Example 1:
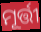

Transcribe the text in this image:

ମୂର୍ତ୍ତୀ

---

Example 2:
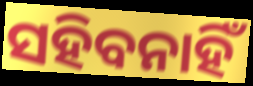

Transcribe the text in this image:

ସହିବନାହିଁ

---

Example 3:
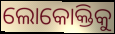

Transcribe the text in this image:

ଲୋକୋକ୍ତିକୁ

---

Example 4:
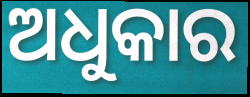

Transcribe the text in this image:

ଅଧୁକାର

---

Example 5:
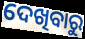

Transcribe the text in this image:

ଦେଖିବାରୁ